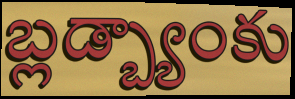
బ్లడ్బ్యాంకు